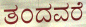
ತಂದವರೆ